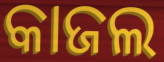
କାଜଲ